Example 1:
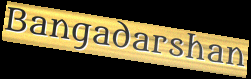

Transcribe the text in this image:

Bangadarshan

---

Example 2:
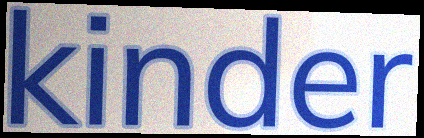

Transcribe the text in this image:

kinder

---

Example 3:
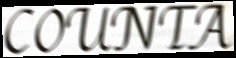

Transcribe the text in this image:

COUNTA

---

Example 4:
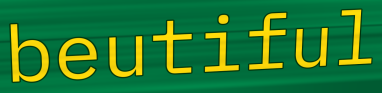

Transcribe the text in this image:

beutiful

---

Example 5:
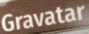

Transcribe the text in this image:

Gravatar